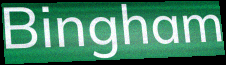
Bingham